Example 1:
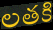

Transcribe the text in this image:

లతకి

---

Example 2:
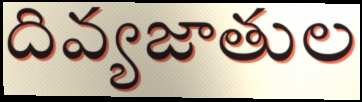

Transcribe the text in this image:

దివ్యజాతుల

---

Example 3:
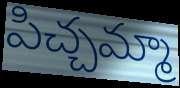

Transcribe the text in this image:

పిచ్చమ్మా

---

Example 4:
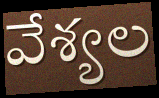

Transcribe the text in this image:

వేశ్యల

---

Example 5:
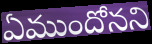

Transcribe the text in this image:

ఏముందోనని